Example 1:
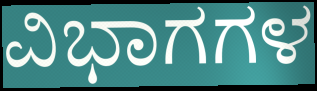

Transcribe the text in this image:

ವಿಭಾಗಗಳ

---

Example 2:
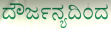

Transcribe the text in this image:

ದೌರ್ಜನ್ಯದಿಂದ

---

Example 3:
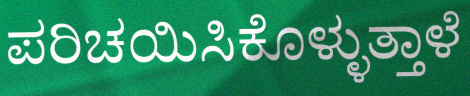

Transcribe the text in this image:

ಪರಿಚಯಿಸಿಕೊಳ್ಳುತ್ತಾಳೆ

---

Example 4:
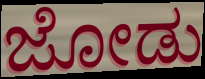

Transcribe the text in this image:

ಜೋಡು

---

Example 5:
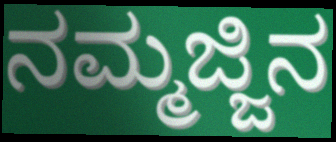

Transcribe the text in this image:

ನಮ್ಮಜ್ಜಿನ